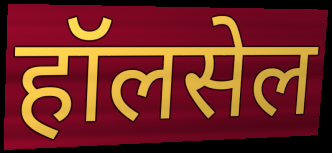
हॉलसेल